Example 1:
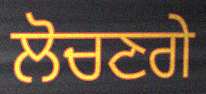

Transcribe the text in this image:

ਲੋਚਣਗੇ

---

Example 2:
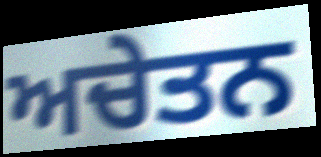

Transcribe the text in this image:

ਅਚੇਤਨ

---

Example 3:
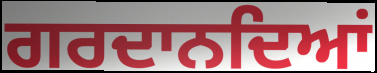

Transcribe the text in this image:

ਗਰਦਾਨਦਿਆਂ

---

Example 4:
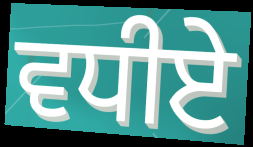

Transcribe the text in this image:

ਵਧੀਏ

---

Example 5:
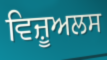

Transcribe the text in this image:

ਵਿਜ਼ੂਅਲਸ